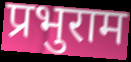
प्रभुराम